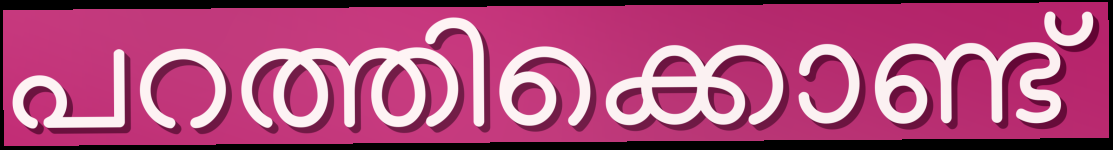
പറത്തിക്കൊണ്ട്